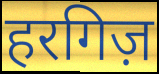
हरगिज़